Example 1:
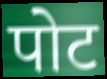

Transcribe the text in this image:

पोट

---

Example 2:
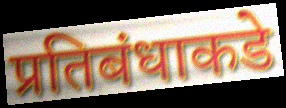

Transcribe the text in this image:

प्रतिबंधाकडे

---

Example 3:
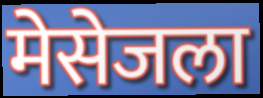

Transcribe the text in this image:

मेसेजला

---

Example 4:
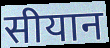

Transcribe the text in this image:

सीयान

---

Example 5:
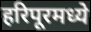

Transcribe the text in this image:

हरिपूरमध्ये